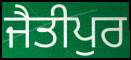
ਜੈਤੀਪੁਰ